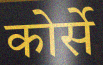
कोर्से